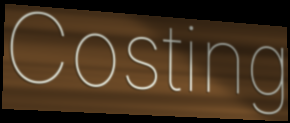
Costing